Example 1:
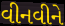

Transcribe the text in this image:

વીનવીને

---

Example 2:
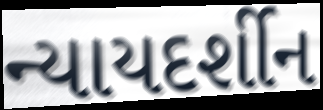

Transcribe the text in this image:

ન્યાયદર્શીન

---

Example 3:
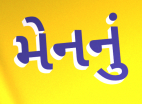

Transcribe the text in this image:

મેનનું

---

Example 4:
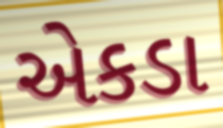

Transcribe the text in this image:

એકડા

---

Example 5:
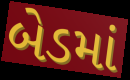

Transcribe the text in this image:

બેડમાં